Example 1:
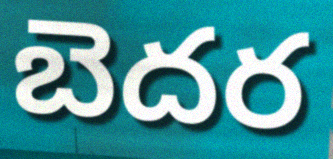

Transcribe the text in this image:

బెదర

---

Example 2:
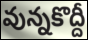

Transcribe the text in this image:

వున్నకొద్దీ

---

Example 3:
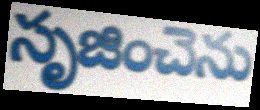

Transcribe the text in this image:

సృజించెను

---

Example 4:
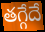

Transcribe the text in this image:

తగ్గేదే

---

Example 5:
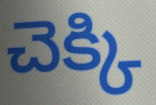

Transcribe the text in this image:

చెక్కి